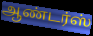
ஆண்டர்ஸ்